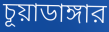
চূয়াডাঙ্গার